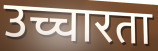
उच्चारता